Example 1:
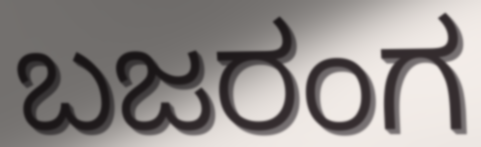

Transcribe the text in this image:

ಬಜರಂಗ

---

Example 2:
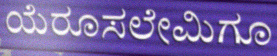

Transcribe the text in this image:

ಯೆರೂಸಲೇಮಿಗೂ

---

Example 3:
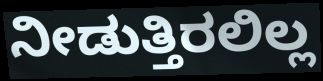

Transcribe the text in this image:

ನೀಡುತ್ತಿರಲಿಲ್ಲ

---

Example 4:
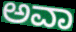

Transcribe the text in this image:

ಅವಾ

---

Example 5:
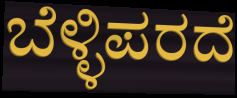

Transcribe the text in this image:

ಬೆಳ್ಳಿಪರದೆ